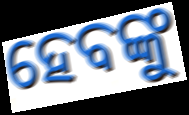
ହେବଙ୍କୁ